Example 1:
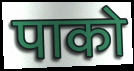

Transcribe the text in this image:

पाको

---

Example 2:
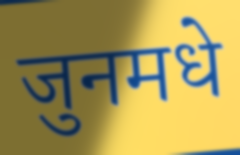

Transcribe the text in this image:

जुनमधे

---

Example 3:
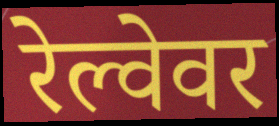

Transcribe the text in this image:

रेल्वेवर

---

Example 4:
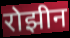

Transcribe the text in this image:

रोझीन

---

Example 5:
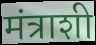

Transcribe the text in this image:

मंत्राशी